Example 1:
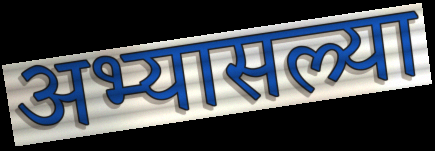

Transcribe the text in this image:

अभ्यासल्या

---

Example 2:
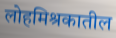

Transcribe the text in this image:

लोहमिश्रकातील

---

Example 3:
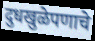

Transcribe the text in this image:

दुधखुळेपणाचे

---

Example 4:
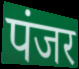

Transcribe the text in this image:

पंजर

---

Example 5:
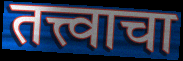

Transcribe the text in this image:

तत्त्वाचा